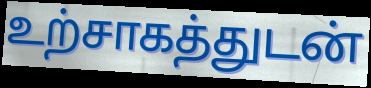
உற்சாகத்துடன்